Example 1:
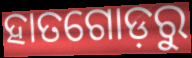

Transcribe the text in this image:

ହାତଗୋଡ଼ରୁ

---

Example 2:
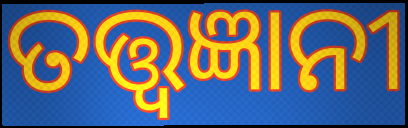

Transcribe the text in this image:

ତତ୍ତ୍ଵଜ୍ଞାନୀ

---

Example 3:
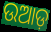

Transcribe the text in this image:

ଉଆଡ଼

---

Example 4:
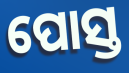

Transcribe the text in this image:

ପୋସ୍ତ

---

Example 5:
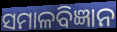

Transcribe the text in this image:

ସମାଳବିଜ୍ଞାନ